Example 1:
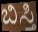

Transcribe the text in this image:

ಬಿಸ್ತಿ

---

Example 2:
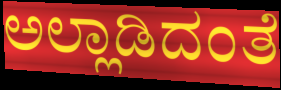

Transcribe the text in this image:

ಅಲ್ಲಾಡಿದಂತೆ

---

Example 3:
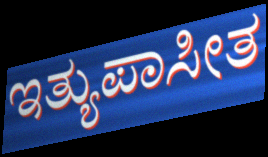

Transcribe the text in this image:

ಇತ್ಯುಪಾಸೀತ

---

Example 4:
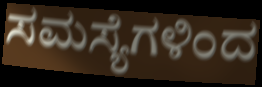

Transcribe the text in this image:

ಸಮಸ್ಯೆಗಳಿಂದ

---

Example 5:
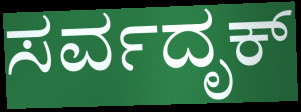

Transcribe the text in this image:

ಸರ್ವದೃಕ್